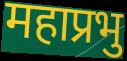
महाप्रभु